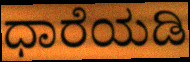
ಧಾರೆಯಡಿ